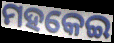
ମହକେଇ